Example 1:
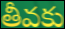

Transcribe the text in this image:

తీవకు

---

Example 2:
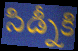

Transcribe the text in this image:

సిడ్నీకి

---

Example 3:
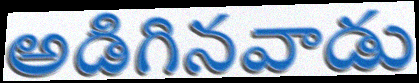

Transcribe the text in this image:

అడిగినవాడు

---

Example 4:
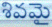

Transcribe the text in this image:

శివమై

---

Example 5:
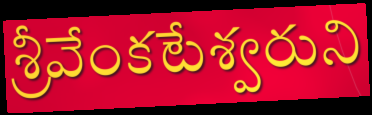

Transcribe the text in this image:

శ్రీవేంకటేశ్వరుని